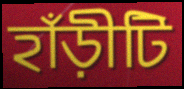
হাঁড়ীটি